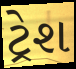
ટ્રેશ